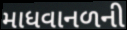
માધવાનળની